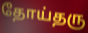
தோய்தரு